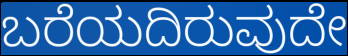
ಬರೆಯದಿರುವುದೇ